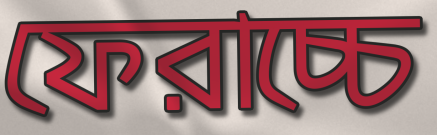
ফেরাচ্চে